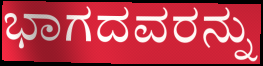
ಭಾಗದವರನ್ನು